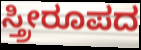
ಸ್ತ್ರೀರೂಪದ